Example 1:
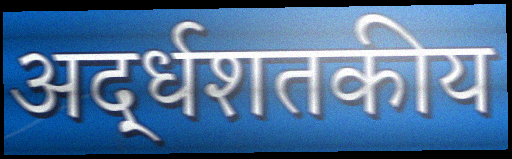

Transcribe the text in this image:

अर्द्धशतकीय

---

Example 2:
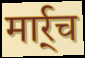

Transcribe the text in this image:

मार्र्च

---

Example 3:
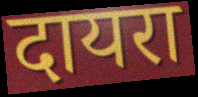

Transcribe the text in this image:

दायरा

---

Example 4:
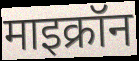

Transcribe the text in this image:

माइक्रॉन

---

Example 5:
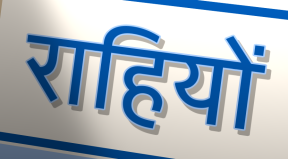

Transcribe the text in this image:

राहियों